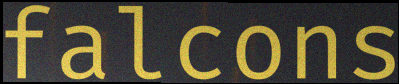
falcons